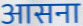
आसना